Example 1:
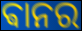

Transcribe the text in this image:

ଵାନର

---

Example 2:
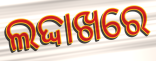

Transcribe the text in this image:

ଲଦ୍ଦାଖରେ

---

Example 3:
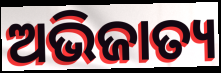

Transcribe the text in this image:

ଅଭିଜାତ୍ୟ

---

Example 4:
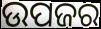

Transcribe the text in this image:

ଉପଜର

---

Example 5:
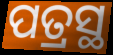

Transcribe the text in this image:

ପତ୍ରସ୍ଥ